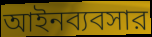
আইনব্যবসার